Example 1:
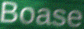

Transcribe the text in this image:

Boase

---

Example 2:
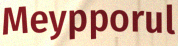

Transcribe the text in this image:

Meypporul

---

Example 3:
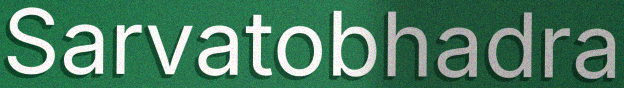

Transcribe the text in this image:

Sarvatobhadra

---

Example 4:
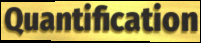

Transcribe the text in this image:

Quantification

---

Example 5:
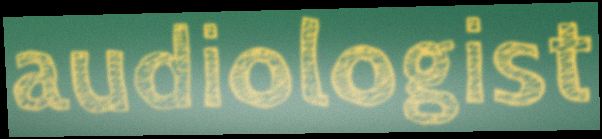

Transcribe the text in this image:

audiologist